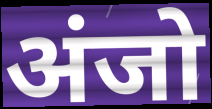
अंजो